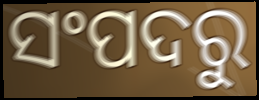
ସଂପଦରୁ